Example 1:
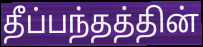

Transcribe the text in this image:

தீப்பந்தத்தின்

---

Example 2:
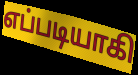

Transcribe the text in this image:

எப்படியாகி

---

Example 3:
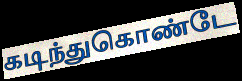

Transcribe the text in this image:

கடிந்துகொண்டே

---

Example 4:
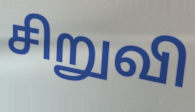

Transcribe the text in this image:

சிறுவி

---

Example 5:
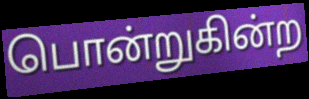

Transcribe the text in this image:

பொன்றுகின்ற